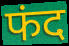
फंद